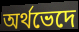
অর্থভেদে